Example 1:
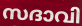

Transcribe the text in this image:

സദാവി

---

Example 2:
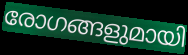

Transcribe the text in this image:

രോഗങ്ങളുമായി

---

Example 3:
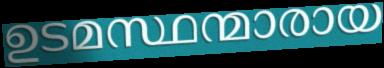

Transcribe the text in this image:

ഉടമസ്ഥന്മാരായ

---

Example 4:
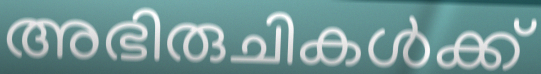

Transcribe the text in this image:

അഭിരുചികൾക്ക്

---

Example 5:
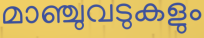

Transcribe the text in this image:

മാഞ്ചുവടുകളും